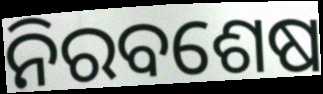
ନିରବଶେଷ